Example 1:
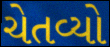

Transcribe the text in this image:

ચેતવ્યો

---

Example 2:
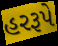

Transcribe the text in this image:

હરરૂપે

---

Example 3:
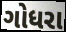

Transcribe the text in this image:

ગોધરા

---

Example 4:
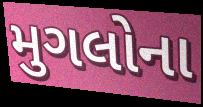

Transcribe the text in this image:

મુગલોના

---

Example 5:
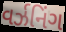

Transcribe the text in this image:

વર્ઝનિંગ